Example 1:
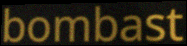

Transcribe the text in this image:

bombast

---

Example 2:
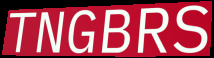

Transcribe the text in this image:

TNGBRS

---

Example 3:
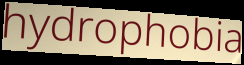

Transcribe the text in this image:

hydrophobia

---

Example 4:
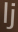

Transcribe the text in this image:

lj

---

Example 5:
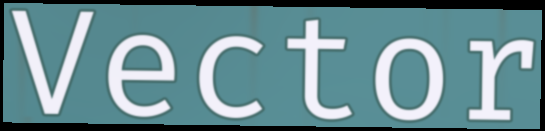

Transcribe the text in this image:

Vector